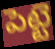
పెట్టె